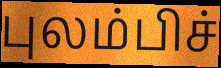
புலம்பிச்